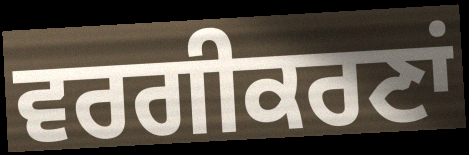
ਵਰਗੀਕਰਣਾਂ